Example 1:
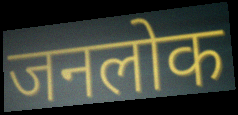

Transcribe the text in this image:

जनलोक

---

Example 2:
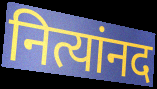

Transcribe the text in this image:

नित्यांनद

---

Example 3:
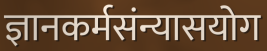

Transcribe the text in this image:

ज्ञानकर्मसंन्यासयोग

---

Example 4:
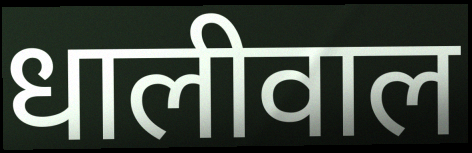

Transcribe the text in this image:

धालीवाल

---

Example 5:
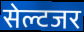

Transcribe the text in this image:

सेल्टजर